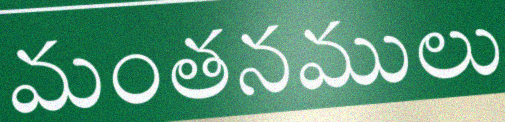
మంతనములు